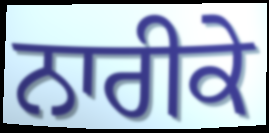
ਨਾਰੀਕੇ